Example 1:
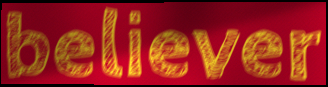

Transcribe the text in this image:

believer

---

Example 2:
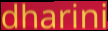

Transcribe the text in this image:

dharini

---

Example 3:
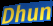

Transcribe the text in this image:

Dhun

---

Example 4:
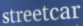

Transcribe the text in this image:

streetcar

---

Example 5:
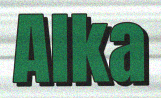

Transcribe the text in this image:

Alka